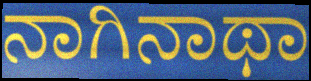
ನಾಗಿನಾಥಾ